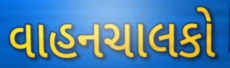
વાહનચાલકો